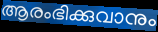
ആരംഭിക്കുവാനും